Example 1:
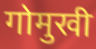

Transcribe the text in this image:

गोमुखी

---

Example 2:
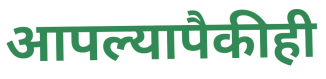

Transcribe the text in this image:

आपल्यापैकीही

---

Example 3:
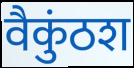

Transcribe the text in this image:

वैकुंठश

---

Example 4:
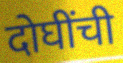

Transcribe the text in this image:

दोघींची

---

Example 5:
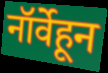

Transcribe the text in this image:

नॉर्वेहून